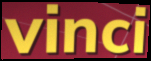
vinci